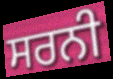
ਸਰਨੀ